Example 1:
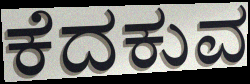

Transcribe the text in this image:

ಕೆದಕುವ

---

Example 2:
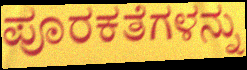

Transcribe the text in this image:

ಪೂರಕತೆಗಳನ್ನು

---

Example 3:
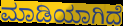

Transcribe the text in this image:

ಮಾಡಿಯಾಗಿದೆ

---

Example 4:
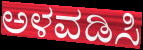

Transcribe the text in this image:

ಅಳವಡಿಸಿ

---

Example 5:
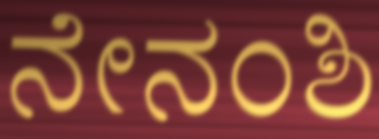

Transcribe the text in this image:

ನೇನಂಶಿ